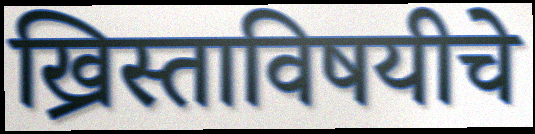
ख्रिस्ताविषयीचे